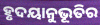
ହୃଦୟାନୁଭୂତିର